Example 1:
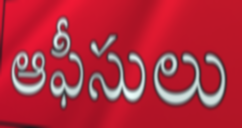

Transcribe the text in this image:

ఆఫీసులు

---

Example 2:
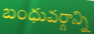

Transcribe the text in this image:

బంధువర్గాన్ని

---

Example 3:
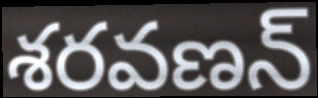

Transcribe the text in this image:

శరవణన్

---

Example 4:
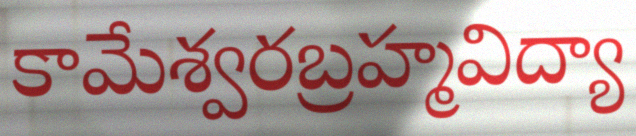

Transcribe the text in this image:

కామేశ్వరబ్రహ్మవిద్యా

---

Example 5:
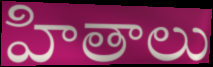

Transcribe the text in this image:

హితాలు